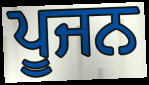
ਪੂਜਨ